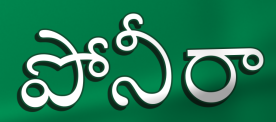
పోనీరా